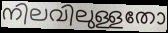
നിലവിലുള്ളതോ